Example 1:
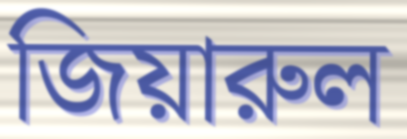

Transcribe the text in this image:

জিয়ারুল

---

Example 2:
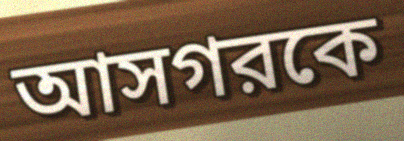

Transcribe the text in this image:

আসগরকে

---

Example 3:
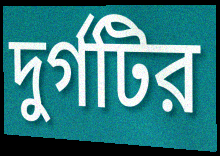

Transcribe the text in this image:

দুর্গটির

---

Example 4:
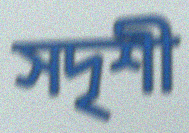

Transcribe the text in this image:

সদৃশী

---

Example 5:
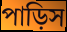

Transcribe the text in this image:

পাড়িস